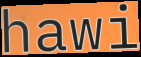
hawi